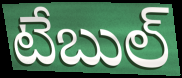
టేబుల్